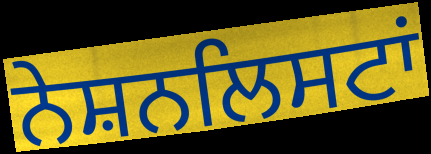
ਨੇਸ਼ਨਲਿਸਟਾਂ